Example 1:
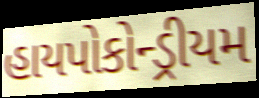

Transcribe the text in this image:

હાયપોકોન્ડ્રીયમ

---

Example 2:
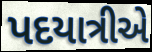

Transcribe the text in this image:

પદયાત્રીએ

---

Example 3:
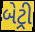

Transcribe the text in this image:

બેટ્રી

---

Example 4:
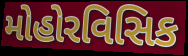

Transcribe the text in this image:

મોહોરવિસિક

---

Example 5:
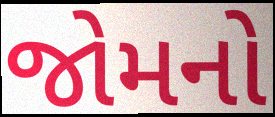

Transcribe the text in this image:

જોમનો